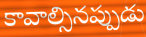
కావాల్సినప్పుడు